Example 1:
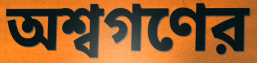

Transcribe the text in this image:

অশ্বগণের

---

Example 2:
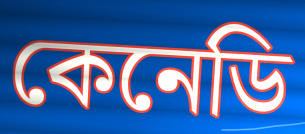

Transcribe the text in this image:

কেনেডি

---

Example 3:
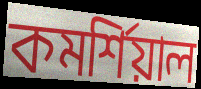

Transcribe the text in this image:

কমর্শিয়াল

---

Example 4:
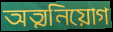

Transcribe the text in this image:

অত্মনিয়োগ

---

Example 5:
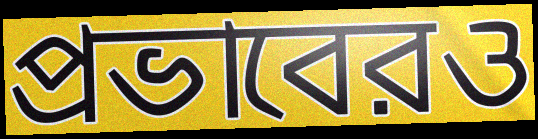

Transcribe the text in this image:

প্রভাবেরও